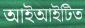
আইআইটিত